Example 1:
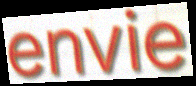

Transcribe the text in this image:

envie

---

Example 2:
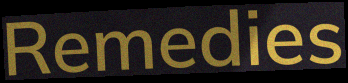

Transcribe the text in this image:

Remedies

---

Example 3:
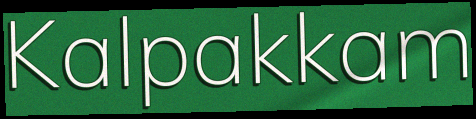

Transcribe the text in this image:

Kalpakkam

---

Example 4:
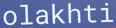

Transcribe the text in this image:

olakhti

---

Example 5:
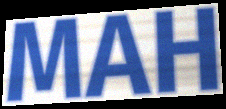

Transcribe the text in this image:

MAH